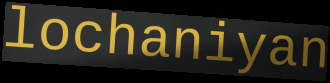
lochaniyan